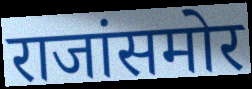
राजांसमोर